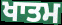
ਖਾਤਮ